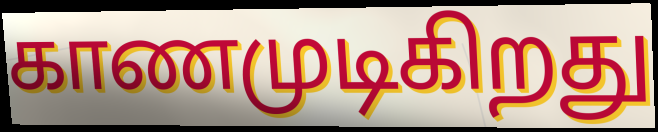
காணமுடிகிறது